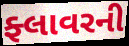
ફ્લાવરની